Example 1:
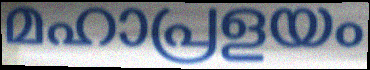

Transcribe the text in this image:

മഹാപ്രളയം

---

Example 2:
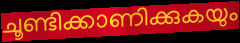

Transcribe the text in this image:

ചൂണ്ടിക്കാണിക്കുകയും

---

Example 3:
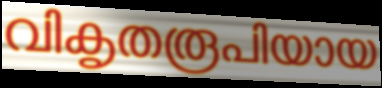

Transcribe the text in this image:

വികൃതരൂപിയായ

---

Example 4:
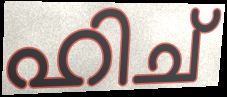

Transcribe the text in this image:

ഹിച്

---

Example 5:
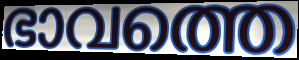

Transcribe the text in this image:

ഭാവത്തെ